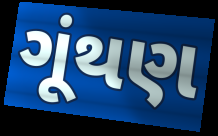
ગૂંથણ